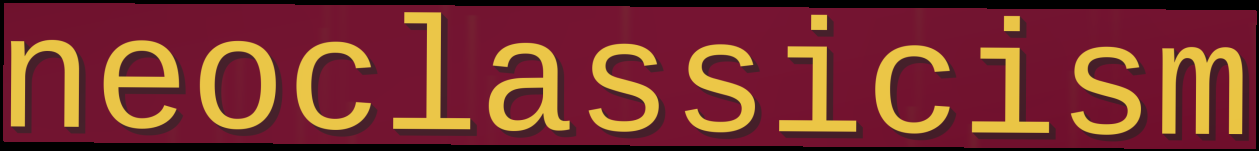
neoclassicism